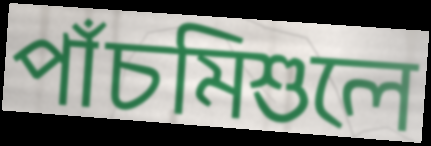
পাঁচমিশুলে